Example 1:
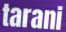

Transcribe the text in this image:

tarani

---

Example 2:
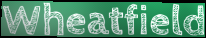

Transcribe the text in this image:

Wheatfield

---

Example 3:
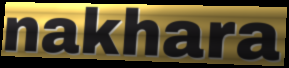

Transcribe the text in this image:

nakhara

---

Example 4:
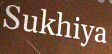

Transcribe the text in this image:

Sukhiya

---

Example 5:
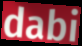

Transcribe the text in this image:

dabi